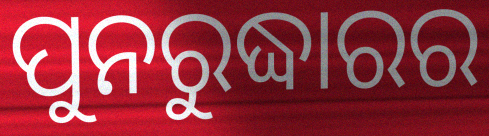
ପୁନରୁଦ୍ଧାରର